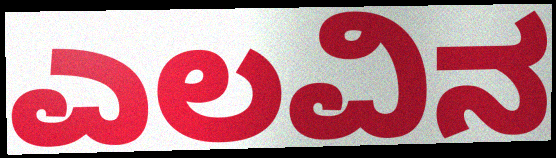
ಎಲವಿನ